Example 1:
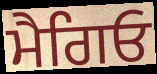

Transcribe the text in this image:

ਮੈਗਿਓ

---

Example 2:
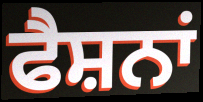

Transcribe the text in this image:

ਫੈਸ਼ਨਾਂ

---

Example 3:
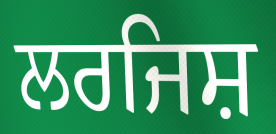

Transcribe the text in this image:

ਲਰਜਿਸ਼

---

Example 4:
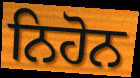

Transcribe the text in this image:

ਨਿਹੋਨ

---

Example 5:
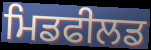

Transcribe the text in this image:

ਮਿਡਫੀਲਡ